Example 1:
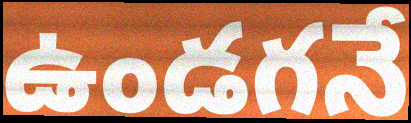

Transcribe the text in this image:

ఉండగనే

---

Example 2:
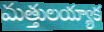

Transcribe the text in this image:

మత్తులయ్యాక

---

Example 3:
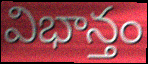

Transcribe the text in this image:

విభాన్తం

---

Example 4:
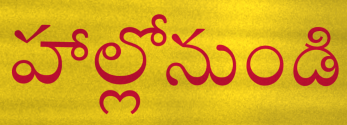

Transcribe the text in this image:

హాల్లోనుండి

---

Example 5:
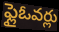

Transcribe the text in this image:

ఫ్లైఓవర్లు